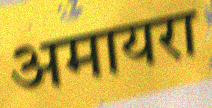
अमायरा